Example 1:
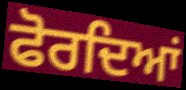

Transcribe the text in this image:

ਫੋਰਦਿਆਂ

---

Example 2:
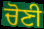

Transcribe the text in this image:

ਚੋਣੀ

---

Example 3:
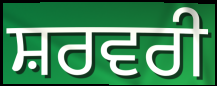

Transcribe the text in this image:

ਸ਼ਰਵਰੀ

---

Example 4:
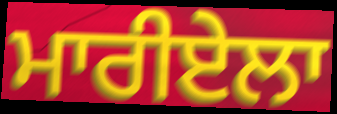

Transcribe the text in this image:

ਮਾਰੀਏਲਾ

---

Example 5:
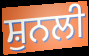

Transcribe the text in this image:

ਸ਼ੁਨਲੀ